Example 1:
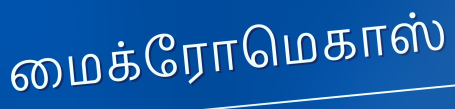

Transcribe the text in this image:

மைக்ரோமெகாஸ்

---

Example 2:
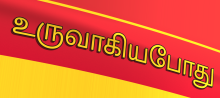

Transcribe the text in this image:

உருவாகியபோது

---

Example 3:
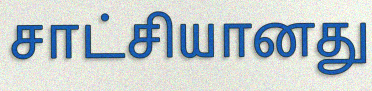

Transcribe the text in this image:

சாட்சியானது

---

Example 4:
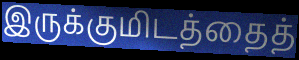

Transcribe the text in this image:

இருக்குமிடத்தைத்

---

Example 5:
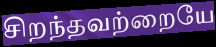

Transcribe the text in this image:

சிறந்தவற்றையே